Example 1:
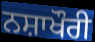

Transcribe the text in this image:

ਨਸ਼ਾਖੌਰੀ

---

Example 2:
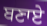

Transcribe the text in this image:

ਬਣਾਏ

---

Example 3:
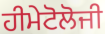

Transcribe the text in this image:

ਹੀਮੇਟੋਲੋਜੀ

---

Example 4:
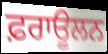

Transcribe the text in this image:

ਫ਼ਰਾਊਲਨ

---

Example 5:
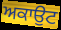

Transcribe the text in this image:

ਅਕਾਉਟ